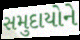
સમુદાયોને